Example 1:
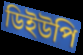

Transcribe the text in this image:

ডিইউপি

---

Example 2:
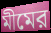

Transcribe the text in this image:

মীমের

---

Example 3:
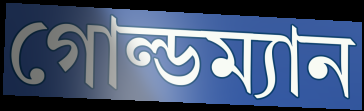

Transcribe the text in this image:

গোল্ডম্যান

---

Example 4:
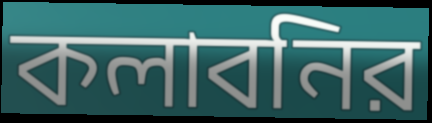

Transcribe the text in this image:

কলাবনির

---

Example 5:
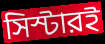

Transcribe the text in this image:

সিস্টারই